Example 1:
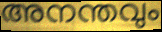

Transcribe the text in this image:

അനന്തവും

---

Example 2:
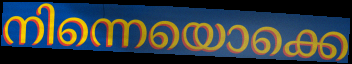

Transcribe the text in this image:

നിന്നെയൊക്കെ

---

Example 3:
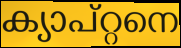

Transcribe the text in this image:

ക്യാപ്റ്റനെ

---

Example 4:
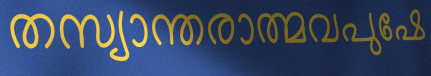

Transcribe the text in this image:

തസ്യാന്തരാത്മവപുഷേ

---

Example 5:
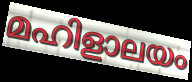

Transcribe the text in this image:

മഹിളാലയം